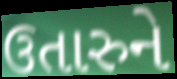
ઉતારુને